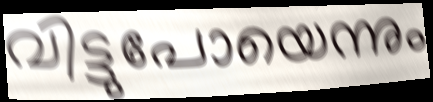
വിട്ടുപോയെന്നും